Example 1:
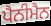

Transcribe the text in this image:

ਪੈਨੀਮੈਨ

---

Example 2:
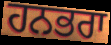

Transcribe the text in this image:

ਹਨਭਰਾ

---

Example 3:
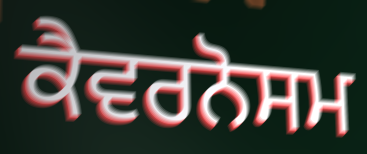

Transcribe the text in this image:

ਕੈਵਰਨੋਸਮ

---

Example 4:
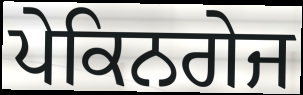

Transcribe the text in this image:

ਪੇਕਿਨਗੇਜ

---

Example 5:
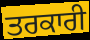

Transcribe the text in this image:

ਤਰਕਾਰੀ